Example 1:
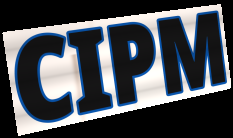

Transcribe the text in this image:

CIPM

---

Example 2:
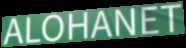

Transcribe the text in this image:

ALOHANET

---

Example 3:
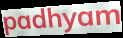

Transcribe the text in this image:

padhyam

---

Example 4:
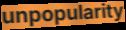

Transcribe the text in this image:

unpopularity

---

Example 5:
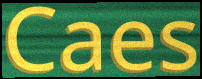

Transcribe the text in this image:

Caes